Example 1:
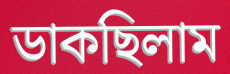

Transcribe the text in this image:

ডাকছিলাম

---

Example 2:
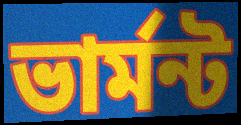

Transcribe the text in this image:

ভার্মন্ট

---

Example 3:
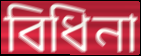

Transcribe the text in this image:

বিধিনা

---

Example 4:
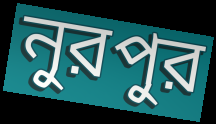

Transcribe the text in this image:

নুরপুর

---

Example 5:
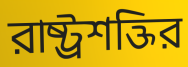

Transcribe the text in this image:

রাষ্ট্রশক্তির